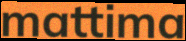
mattima